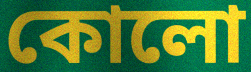
কোলো